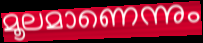
മൂലമാണെന്നും